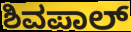
ಶಿವಪಾಲ್